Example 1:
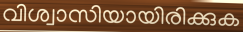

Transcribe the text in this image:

വിശ്വാസിയായിരിക്കുക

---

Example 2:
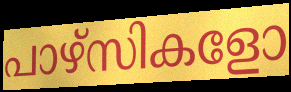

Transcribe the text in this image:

പാഴ്സികളോ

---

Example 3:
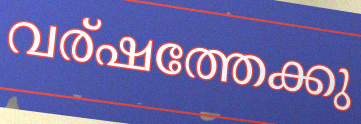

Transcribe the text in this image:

വര്ഷത്തേക്കു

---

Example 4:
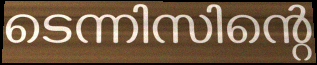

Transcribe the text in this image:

ടെന്നിസിന്റെ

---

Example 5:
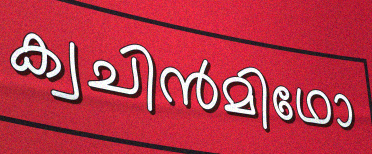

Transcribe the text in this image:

ക്വചിൻമിഥോ